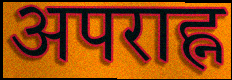
अपराह्न